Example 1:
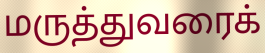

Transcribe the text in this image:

மருத்துவரைக்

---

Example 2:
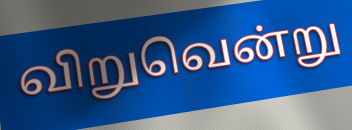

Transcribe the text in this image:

விறுவென்று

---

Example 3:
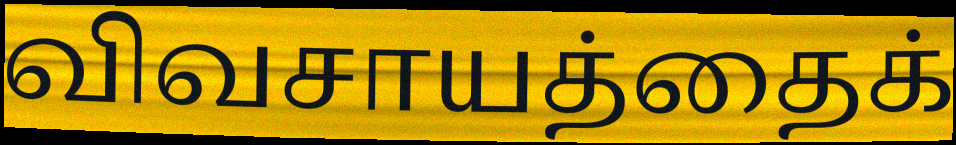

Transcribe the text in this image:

விவசாயத்தைக்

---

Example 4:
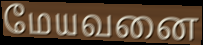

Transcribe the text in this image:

மேயவனை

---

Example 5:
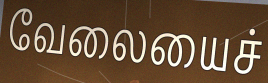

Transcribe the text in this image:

வேலையைச்